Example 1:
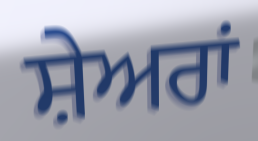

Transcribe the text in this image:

ਸ਼ੇਅਰਾਂ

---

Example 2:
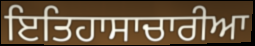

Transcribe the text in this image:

ਇਤਿਹਾਸਾਚਾਰੀਆ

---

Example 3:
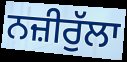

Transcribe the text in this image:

ਨਜ਼ੀਰੁੱਲਾ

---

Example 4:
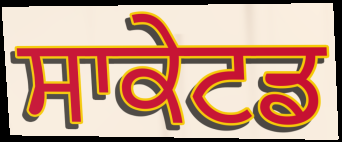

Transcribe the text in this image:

ਸਾਕੇਟਡ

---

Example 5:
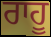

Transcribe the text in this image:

ਰਾਹੂ